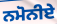
ਨਮੋਨੀਏ